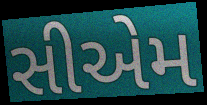
સીએમ